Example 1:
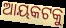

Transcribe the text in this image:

ଆୟକଟକୁ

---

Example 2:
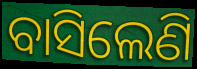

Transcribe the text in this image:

ବାସିଲେଣି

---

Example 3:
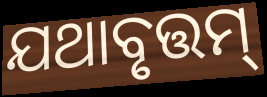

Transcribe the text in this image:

ଯଥାବୃତ୍ତମ୍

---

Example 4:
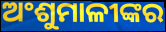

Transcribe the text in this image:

ଅଂଶୁମାଳୀଙ୍କର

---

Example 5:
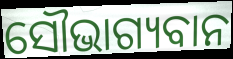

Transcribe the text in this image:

ସୌଭାଗ୍ୟବାନ